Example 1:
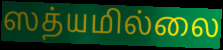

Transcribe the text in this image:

ஸத்யமில்லை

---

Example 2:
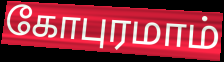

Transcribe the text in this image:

கோபுரமாம்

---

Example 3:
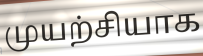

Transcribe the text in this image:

முயற்சியாக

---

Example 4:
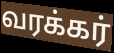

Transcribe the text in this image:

வரக்கர்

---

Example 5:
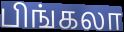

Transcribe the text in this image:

பிங்கலா